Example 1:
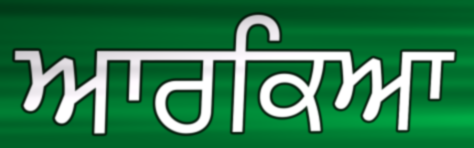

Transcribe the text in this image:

ਆਰਕਿਆ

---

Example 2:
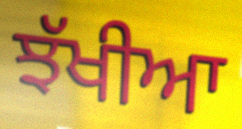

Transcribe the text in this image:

ਝੱਖੀਆ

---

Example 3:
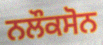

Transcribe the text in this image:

ਨਲੌਕਸੋਨ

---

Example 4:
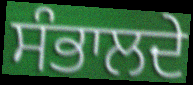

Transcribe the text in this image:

ਸੰਭਾਲਦੇ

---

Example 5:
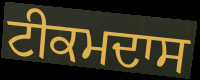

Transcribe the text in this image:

ਟੀਕਮਦਾਸ